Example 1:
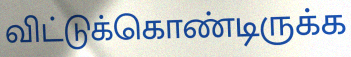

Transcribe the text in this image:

விட்டுக்கொண்டிருக்க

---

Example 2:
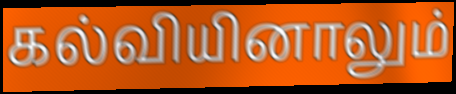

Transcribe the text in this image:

கல்வியினாலும்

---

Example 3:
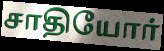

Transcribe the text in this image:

சாதியோர்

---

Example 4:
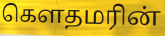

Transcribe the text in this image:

கௌதமரின்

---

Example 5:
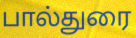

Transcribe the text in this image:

பால்துரை